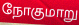
நோகுமாறு